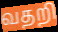
வதறி